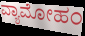
ವ್ಯಾಮೋಹಂ